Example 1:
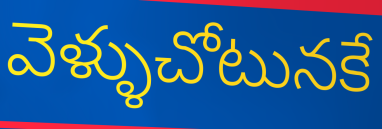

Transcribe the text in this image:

వెళ్ళుచోటునకే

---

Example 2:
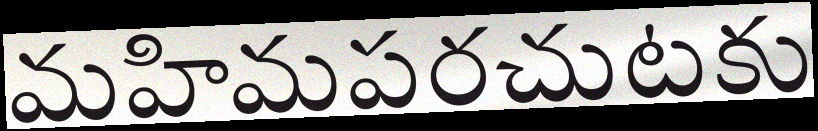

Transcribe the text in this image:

మహిమపరచుటకు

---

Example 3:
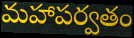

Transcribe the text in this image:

మహాపర్వతం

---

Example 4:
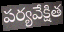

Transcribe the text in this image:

పర్యవేక్షిత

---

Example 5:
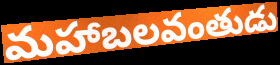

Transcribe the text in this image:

మహాబలవంతుడు